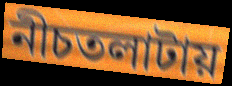
নীচতলাটায়